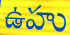
ఉహు